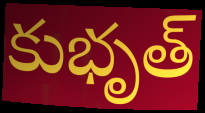
కుభృత్